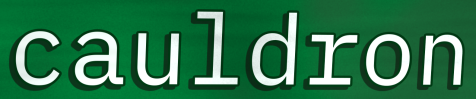
cauldron